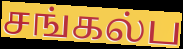
சங்கல்ப